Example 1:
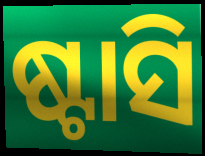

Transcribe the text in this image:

ଷ୍ଟାସି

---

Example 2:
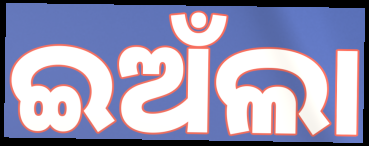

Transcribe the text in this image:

ଇଅଁଲା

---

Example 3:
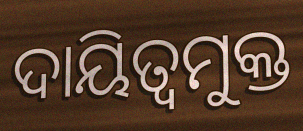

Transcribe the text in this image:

ଦାୟିତ୍ୱମୁକ୍ତ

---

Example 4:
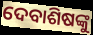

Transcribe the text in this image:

ଦେବାଶିଷଙ୍କୁ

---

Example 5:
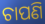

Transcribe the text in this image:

ଚାପଣି